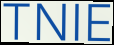
TNIE